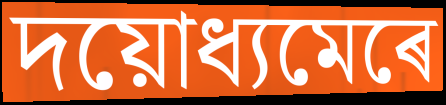
দয়োধ্যমেৰে